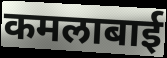
कमलाबाई